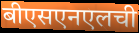
बीएसएनएलची